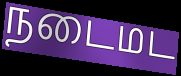
நடைமட